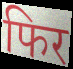
फिर